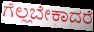
ಗೆಲ್ಲಬೇಕಾದರೆ